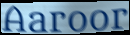
Aaroor